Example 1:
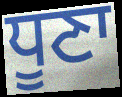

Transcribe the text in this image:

ਧੂਣਾ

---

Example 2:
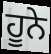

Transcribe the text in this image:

ਹੂਨੇ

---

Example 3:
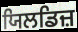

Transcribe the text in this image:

ਯਿਲਡਿਜ਼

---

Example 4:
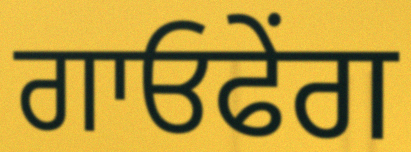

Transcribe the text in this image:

ਗਾਓਫੇਂਗ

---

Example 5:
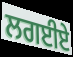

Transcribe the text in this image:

ਲਗਈਏ